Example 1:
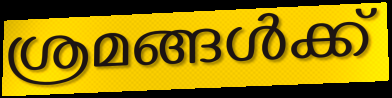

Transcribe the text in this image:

ശ്രമങ്ങൾക്ക്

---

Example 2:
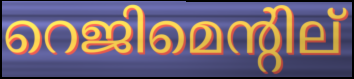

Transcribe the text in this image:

റെജിമെന്റില്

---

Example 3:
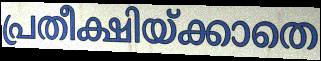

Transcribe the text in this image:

പ്രതീക്ഷിയ്ക്കാതെ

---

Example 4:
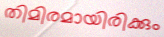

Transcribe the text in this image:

തിമിരമായിരിക്കും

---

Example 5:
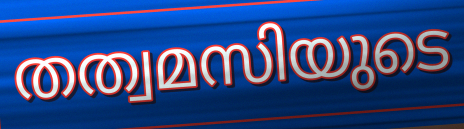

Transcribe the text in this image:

തത്വമസിയുടെ